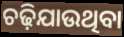
ଚଢ଼ିଯାଉଥିବା